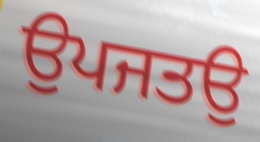
ਉਪਜਤਉ